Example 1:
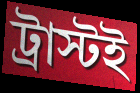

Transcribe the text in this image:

ট্রাস্টই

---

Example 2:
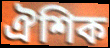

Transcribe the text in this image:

ঐশিক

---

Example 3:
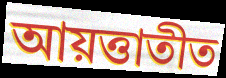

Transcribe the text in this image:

আয়ত্তাতীত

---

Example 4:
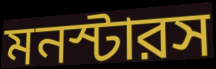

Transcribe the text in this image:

মনস্টারস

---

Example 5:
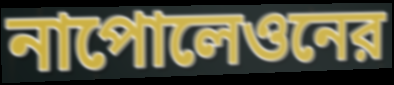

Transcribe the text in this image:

নাপোলেওনের